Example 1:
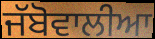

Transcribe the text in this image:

ਜੱਬੋਵਾਲੀਆ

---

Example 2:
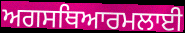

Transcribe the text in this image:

ਅਗਸਥਿਆਰਮਲਾਈ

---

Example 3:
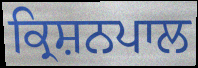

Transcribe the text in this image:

ਕ੍ਰਿਸ਼ਨਪਾਲ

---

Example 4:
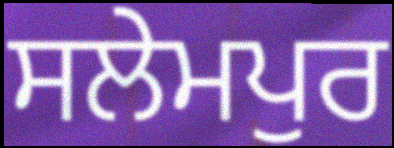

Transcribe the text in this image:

ਸਲੇਮਪੁਰ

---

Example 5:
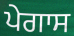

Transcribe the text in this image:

ਪੇਗਾਸ